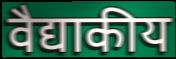
वैद्याकीय